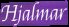
Hjalmar